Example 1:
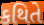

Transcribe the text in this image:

કથિતે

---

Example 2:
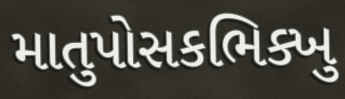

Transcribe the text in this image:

માતુપોસકભિક્ખુ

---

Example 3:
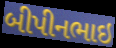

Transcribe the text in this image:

બીપીનભાઇ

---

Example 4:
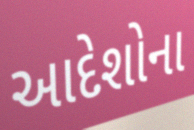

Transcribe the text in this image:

આદેશોના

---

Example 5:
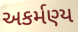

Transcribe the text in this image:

અકર્મણ્ય